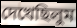
দেখেছিলুম